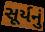
સૂર્યનું